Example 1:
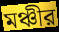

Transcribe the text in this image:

মঞ্চীর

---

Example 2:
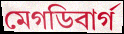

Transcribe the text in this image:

মেগডিবার্গ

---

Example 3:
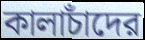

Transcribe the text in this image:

কালাচাঁদের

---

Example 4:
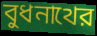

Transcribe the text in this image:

বুধনাথের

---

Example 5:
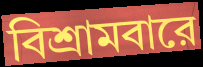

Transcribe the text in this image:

বিশ্রামবারে